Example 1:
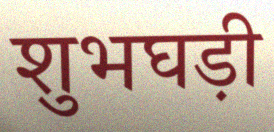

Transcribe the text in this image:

शुभघड़ी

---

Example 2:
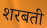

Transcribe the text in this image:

शरबती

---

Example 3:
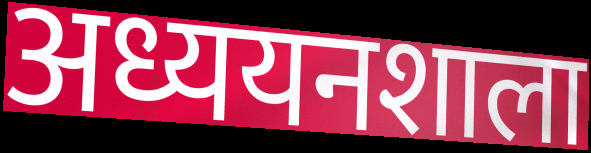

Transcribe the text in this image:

अध्ययनशाला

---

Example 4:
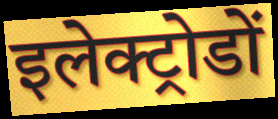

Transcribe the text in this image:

इलेक्ट्रोडों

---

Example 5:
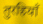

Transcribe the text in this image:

तुरहियाँ